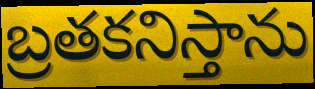
బ్రతకనిస్తాను